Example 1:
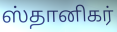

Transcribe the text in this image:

ஸ்தானிகர்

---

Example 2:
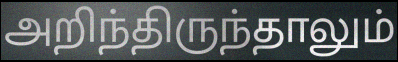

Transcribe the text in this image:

அறிந்திருந்தாலும்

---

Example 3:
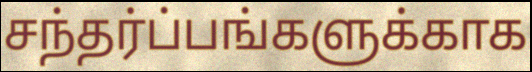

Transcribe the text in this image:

சந்தர்ப்பங்களுக்காக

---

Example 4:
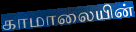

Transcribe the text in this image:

காமாலையின்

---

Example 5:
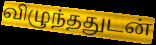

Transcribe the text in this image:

விழுந்ததுடன்